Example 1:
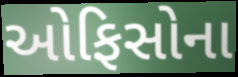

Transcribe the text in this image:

ઓફિસોના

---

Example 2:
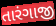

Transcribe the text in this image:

તારંગાજી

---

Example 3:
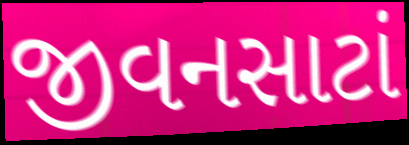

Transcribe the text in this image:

જીવનસાટાં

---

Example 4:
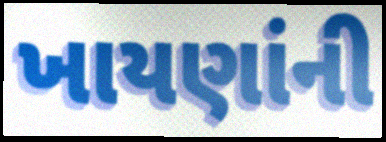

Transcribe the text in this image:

ખાયણાંની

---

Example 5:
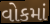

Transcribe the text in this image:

વોકમાં